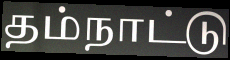
தம்நாட்டு